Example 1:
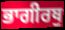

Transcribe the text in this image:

ਭਾਗੀਰਥੁ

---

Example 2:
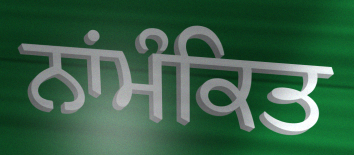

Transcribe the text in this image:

ਨਾਂਮੰਕਿਤ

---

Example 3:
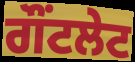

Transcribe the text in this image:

ਗੌਂਟਲੇਟ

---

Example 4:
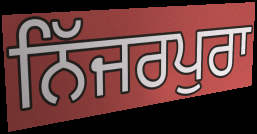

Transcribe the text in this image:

ਨਿੱਜਰਪੁਰਾ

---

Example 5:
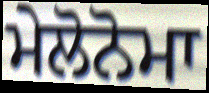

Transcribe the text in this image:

ਮੇਲੋਨੋਮਾ